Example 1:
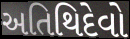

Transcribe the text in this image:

અતિથિદેવો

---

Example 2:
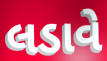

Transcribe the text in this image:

લડાવે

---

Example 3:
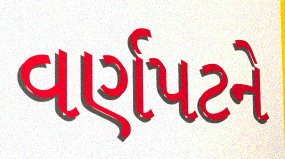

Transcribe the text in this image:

વર્ણપટને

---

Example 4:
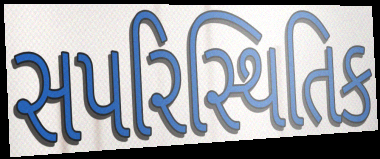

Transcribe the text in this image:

સપરિસ્થિતિક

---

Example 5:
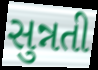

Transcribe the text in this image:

સુન્નતી